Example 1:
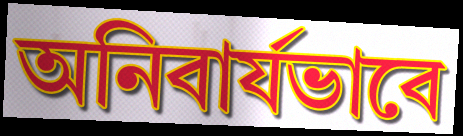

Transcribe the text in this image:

অনিবার্যভাবে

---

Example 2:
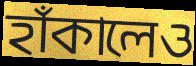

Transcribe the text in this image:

হাঁকালেও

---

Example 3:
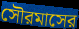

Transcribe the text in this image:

সৌরমাসের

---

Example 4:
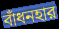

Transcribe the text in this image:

বাঁধনহার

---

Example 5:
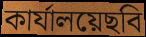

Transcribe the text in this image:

কার্যালয়েছবি